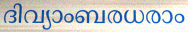
ദിവ്യാംബരധരാം